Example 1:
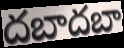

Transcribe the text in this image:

దబాదబా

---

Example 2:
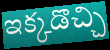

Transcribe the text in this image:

ఇక్కడొచ్చి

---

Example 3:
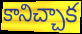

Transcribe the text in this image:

కానిచ్చాక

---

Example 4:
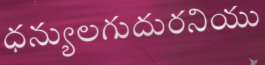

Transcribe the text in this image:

ధన్యులగుదురనియు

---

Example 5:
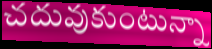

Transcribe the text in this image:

చదువుకుంటున్నా